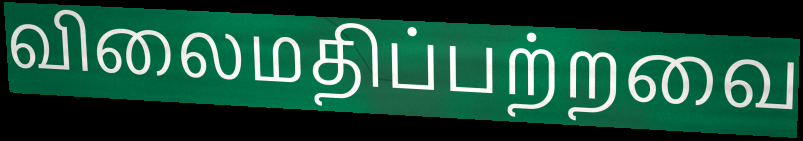
விலைமதிப்பற்றவை